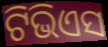
ଟିଭିଏସ